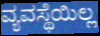
ವ್ಯವಸ್ಥೆಯಿಲ್ಲ